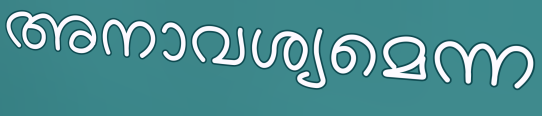
അനാവശ്യമെന്ന